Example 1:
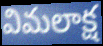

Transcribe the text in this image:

విమలాక్ష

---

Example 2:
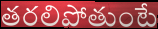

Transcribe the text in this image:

తరలిపోతుంటే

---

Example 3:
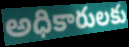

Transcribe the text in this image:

అధికారులకు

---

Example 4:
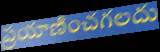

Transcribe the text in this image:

ప్రయాణించగలదు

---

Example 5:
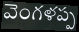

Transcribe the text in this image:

వెంగళప్ప